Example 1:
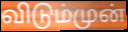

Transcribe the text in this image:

விடும்முன்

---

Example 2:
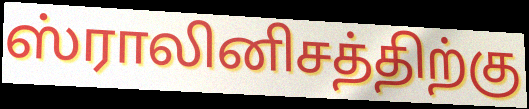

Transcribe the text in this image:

ஸ்ராலினிசத்திற்கு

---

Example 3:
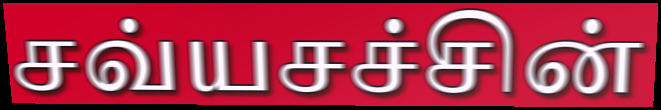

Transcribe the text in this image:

சவ்யசச்சின்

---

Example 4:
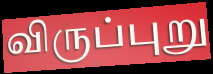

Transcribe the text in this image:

விருப்புறு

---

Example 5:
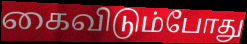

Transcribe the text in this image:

கைவிடும்போது